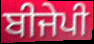
ਬੀਜੇਪੀ